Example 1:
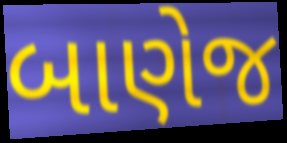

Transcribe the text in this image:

બાણેજ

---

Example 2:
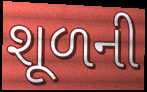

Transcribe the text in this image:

શૂળની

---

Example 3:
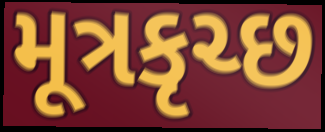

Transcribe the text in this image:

મૂત્રકૃચ્છ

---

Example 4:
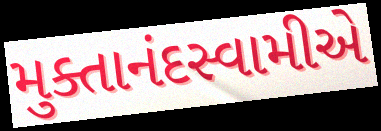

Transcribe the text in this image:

મુક્તાનંદસ્વામીએ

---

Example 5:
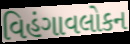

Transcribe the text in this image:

વિહંગાવલોકન